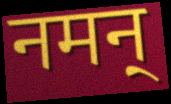
नमन्